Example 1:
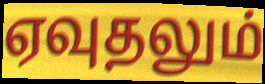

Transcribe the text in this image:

ஏவுதலும்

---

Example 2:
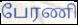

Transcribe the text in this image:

பேரணி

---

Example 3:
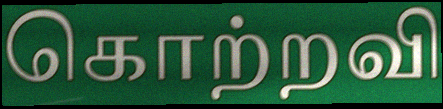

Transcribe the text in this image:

கொற்றவி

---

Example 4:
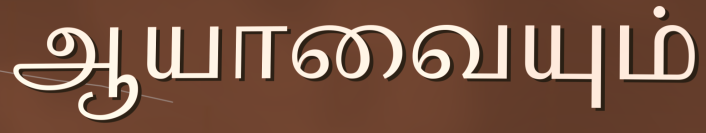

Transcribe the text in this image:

ஆயாவையும்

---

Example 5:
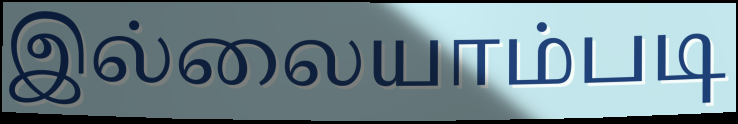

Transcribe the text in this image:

இல்லையாம்படி